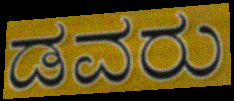
ಡವರು